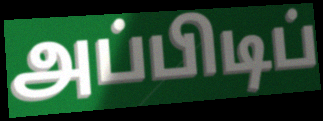
அப்பிடிப்